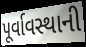
પૂર્વાવસ્થાની